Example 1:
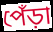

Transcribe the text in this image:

পেঁড়া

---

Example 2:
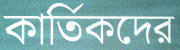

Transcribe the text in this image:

কার্তিকদের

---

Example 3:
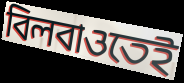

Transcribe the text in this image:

বিলবাওতেই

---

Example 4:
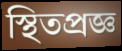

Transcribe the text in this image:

স্থিতপ্রজ্ঞ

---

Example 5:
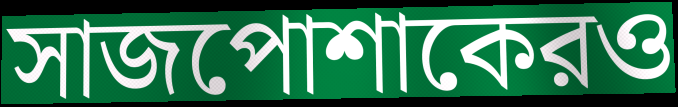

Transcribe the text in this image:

সাজপোশাকেরও